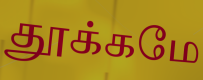
தூக்கமே